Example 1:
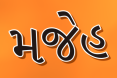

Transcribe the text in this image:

મજેહ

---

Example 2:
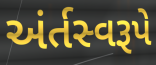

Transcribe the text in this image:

અંર્તસ્વરૂપે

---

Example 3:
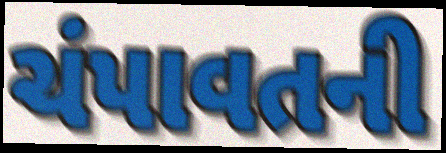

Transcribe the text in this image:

ચંપાવતની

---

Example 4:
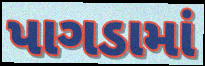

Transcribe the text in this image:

પાગડામાં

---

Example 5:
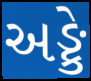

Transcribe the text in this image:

અઙ્કે